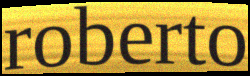
roberto